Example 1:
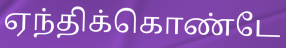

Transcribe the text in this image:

ஏந்திக்கொண்டே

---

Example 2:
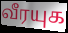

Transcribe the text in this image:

வீரயுக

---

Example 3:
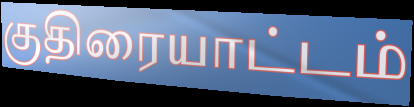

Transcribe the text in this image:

குதிரையாட்டம்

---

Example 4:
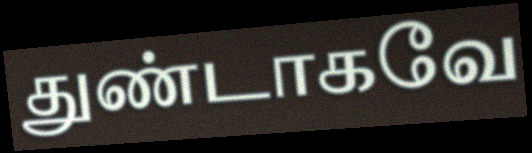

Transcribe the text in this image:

துண்டாகவே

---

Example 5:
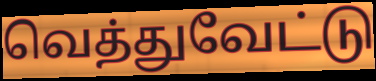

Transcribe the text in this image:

வெத்துவேட்டு